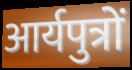
आर्यपुत्रों